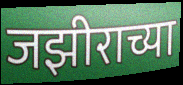
जझीराच्या